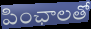
పింఛాలతో